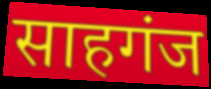
साहगंज